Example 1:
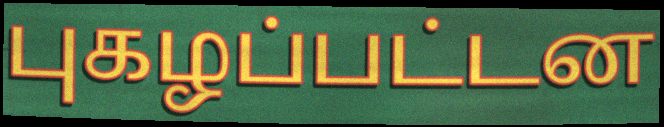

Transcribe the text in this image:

புகழப்பட்டன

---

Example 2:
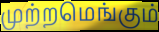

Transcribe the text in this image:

முற்றமெங்கும்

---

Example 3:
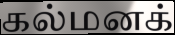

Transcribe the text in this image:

கல்மனக்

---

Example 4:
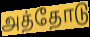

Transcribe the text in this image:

அத்தோடு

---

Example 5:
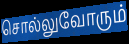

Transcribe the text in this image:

சொல்லுவோரும்